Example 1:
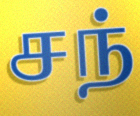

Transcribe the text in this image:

சந்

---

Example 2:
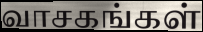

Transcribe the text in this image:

வாசகங்கள்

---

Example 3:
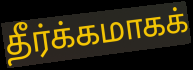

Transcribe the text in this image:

தீர்க்கமாகக்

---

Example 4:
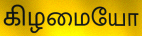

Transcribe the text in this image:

கிழமையோ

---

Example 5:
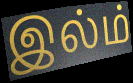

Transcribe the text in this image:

இல்ம்